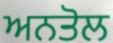
ਅਨਤੋਲ